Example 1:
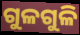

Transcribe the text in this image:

ଗୁଳଗୁଳି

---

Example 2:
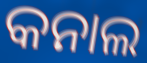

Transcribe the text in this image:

କନାଲ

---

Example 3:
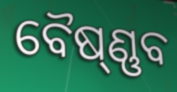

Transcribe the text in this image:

ବୈଷ୍ଣ୍ଣବ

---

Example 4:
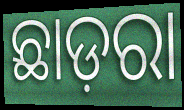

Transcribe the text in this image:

ଛାଡ଼ରା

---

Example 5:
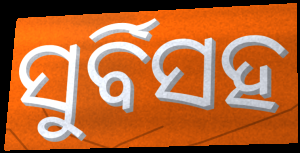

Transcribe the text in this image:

ସୁର୍ବିସହ